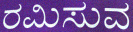
ರಮಿಸುವ